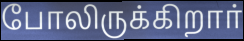
போலிருக்கிறார்